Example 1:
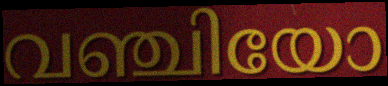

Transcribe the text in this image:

വഞ്ചിയോ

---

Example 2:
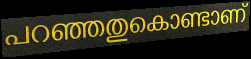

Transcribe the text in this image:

പറഞ്ഞതുകൊണ്ടാണ്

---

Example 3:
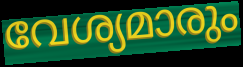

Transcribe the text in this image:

വേശ്യമാരും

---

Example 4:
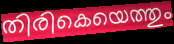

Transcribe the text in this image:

തിരികെയെത്തും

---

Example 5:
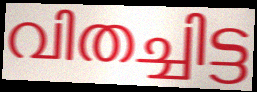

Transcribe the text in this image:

വിതച്ചിട്ട